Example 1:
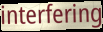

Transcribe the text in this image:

interfering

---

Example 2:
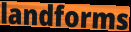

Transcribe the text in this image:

landforms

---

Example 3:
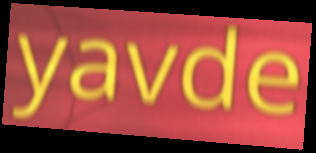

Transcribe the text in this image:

yavde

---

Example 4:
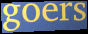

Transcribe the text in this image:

goers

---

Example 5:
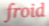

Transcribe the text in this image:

froid